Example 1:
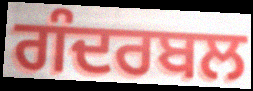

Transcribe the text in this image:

ਗੰਦਰਬਲ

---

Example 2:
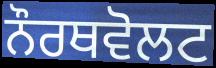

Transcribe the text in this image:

ਨੌਰਥਵੋਲਟ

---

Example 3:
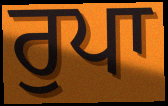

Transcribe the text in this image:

ਰੁਪਾ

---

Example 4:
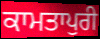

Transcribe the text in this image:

ਕਾਮਤਾਪੁਰੀ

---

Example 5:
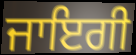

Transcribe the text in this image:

ਜਾਇਗੀ